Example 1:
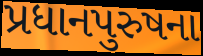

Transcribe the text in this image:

પ્રધાનપુરુષના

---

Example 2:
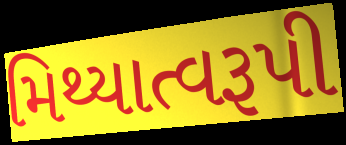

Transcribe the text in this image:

મિથ્યાત્વરૂપી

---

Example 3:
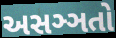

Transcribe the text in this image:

અસઞ્ઞતો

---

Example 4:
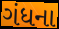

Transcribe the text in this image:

ગંધના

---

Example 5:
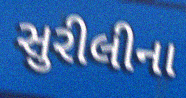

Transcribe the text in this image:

સુરીલીના